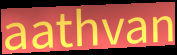
aathvan